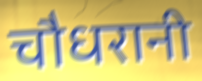
चौधरानी